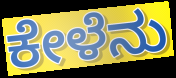
ಕೇಳೆನು